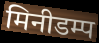
मिनीडम्प